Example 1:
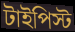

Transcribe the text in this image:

টাইপিস্ট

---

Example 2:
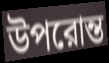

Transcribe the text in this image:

উপরোন্ত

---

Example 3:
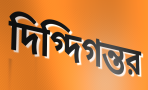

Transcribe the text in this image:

দিগ্দিগন্তর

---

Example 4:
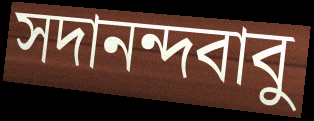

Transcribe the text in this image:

সদানন্দবাবু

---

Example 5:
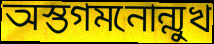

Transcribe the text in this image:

অস্তগমনোন্মুখ